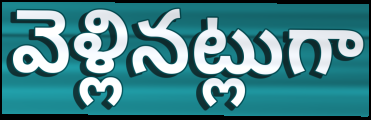
వెళ్లినట్లుగా